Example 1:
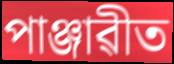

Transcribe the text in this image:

পাঞ্জাৱীত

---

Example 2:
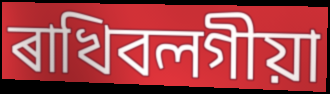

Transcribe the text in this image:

ৰাখিবলগীয়া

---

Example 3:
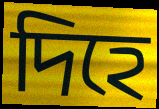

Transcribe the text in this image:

দিহে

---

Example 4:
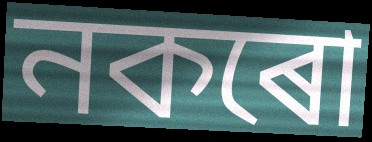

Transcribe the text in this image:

নকৰো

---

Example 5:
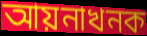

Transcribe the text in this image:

আয়নাখনক